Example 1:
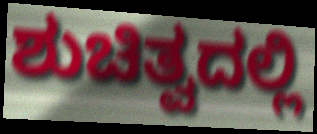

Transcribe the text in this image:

ಶುಚಿತ್ವದಲ್ಲಿ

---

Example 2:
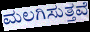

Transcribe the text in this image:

ಮಲಗಿಸುತ್ತವೆ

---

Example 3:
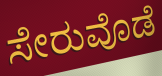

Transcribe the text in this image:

ಸೇರುವೊಡೆ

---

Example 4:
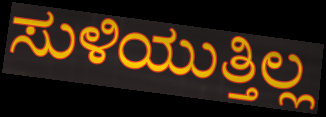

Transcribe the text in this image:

ಸುಳಿಯುತ್ತಿಲ್ಲ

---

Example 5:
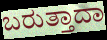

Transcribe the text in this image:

ಬರುತ್ತಾದಾ